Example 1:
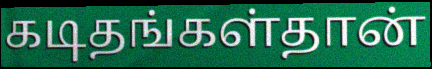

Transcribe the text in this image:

கடிதங்கள்தான்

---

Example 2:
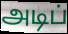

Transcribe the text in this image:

அடிப்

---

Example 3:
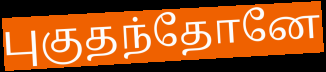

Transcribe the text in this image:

புகுதந்தோனே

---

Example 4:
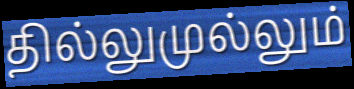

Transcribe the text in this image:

தில்லுமுல்லும்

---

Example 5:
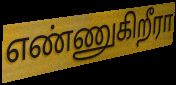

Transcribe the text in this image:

எண்ணுகிறீரா